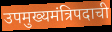
उपमुख्यमंत्रिपदाची